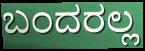
ಬಂದರಲ್ಲ